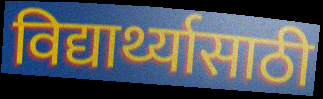
विद्यार्थ्यासाठी